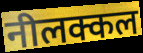
नीलक्कल